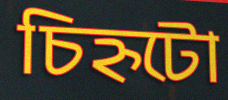
চিহ্নটো